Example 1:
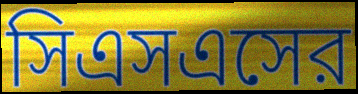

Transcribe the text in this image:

সিএসএসের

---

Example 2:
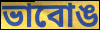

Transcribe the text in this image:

ভাবোঙ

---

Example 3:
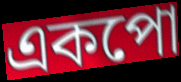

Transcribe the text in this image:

একপো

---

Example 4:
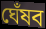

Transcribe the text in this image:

ঘেঁষব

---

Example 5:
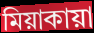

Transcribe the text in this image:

মিয়াকায়া